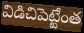
విడిచిపెట్టేంత